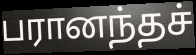
பரானந்தச்